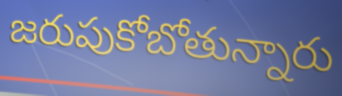
జరుపుకోబోతున్నారు